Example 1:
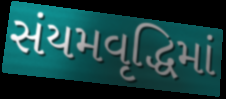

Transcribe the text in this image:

સંયમવૃદ્ધિમાં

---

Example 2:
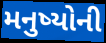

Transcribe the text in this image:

મનુષ્યોની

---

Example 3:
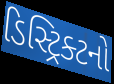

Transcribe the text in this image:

ડિસ્ટ્રિક્ટનો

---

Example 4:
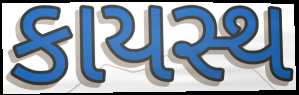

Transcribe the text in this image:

કાયસ્થ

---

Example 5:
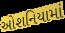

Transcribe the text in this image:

ઓશનિયામાં